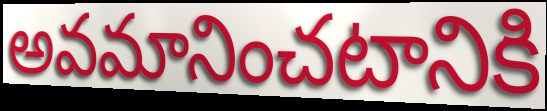
అవమానించటానికి